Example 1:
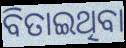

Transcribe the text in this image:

ବିତାଇଥିବା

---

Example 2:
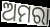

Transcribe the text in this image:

ଅମରା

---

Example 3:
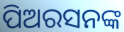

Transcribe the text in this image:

ପିଅରସନଙ୍କ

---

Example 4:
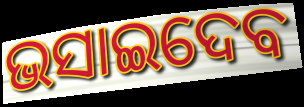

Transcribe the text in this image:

ଭସାଇଦେବ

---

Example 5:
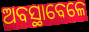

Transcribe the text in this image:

ଅବସ୍ଥାବେଳେ